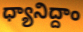
ధ్యానిద్దాం